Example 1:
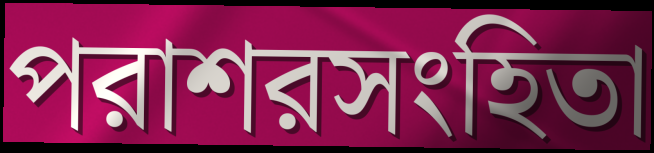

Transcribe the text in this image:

পরাশরসংহিতা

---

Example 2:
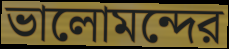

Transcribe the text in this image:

ভালোমন্দের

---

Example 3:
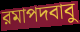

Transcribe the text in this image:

রমাপদবাবু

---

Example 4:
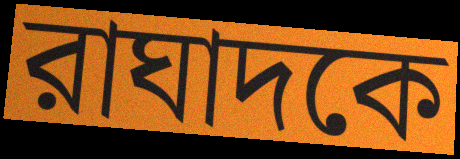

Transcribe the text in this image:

রাঘাদকে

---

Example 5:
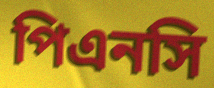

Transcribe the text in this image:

পিএনসি